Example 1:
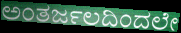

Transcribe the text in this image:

ಅಂತರ್ಜಲದಿಂದಲೇ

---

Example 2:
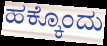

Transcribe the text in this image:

ಹಕ್ಕೊಂದು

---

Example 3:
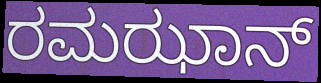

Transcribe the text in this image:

ರಮಝಾನ್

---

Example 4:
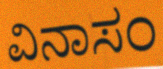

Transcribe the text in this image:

ವಿನಾಸಂ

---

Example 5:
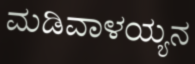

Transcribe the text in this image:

ಮಡಿವಾಳಯ್ಯನ